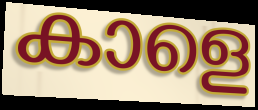
കാളെ